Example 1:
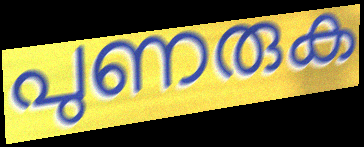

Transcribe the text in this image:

പുണരുക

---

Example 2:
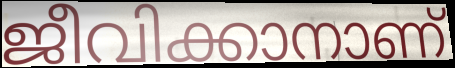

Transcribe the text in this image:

ജീവിക്കാനാണ്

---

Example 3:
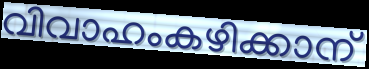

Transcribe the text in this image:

വിവാഹംകഴിക്കാന്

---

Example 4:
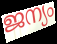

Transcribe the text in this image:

ജന്യം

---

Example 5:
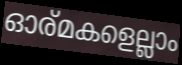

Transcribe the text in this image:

ഓര്മകളെല്ലാം